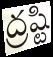
ద్రష్టి